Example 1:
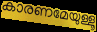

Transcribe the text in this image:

കാരണമേയുള്ളൂ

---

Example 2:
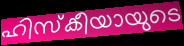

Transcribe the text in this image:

ഹിസ്കീയായുടെ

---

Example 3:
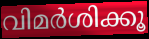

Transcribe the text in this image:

വിമർശിക്കൂ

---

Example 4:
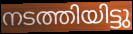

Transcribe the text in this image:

നടത്തിയിട്ടു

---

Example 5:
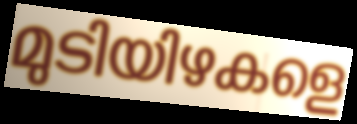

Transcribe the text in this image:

മുടിയിഴകളെ